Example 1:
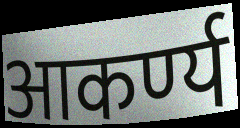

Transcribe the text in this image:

आकर्ण्य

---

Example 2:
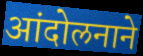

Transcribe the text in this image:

आंदोलनाने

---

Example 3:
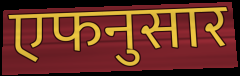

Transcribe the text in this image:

एफनुसार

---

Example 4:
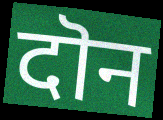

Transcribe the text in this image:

दॊन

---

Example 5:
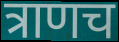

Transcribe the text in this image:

त्राणच